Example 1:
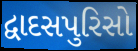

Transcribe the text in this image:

દ્વાદસપુરિસો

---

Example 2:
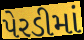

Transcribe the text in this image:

પેરડીમાં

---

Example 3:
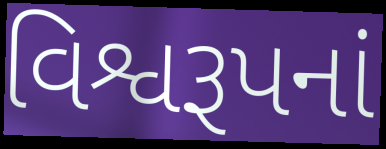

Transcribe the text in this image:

વિશ્વરૂપનાં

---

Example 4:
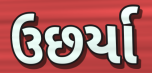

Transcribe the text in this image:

ઉછર્યા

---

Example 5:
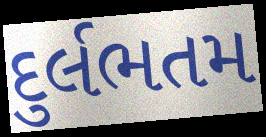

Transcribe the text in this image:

દુર્લભતમ